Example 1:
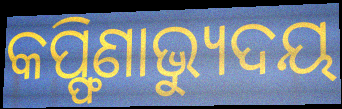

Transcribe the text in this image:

କପ୍ଫିଣାଭ୍ୟୁଦୟ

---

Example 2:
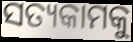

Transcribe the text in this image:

ସତ୍ୟକାମକୁ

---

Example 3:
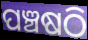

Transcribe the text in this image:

ପଞ୍ଚଷଠି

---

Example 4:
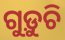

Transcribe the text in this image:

ଗୁଡ଼ୁଚି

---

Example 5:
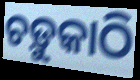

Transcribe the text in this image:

ଚଡ଼ୁକାଠି